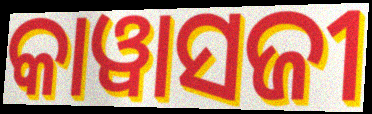
କାୱାସଜୀ